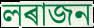
লৰাজন